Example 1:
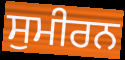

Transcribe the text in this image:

ਸੁਮੀਰਨ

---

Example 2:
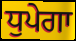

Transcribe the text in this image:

ਧੁਪੇਗਾ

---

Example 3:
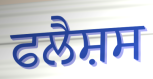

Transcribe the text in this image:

ਫਲੈਸ਼ਸ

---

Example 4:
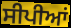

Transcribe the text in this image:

ਸੀਪੀਆਂ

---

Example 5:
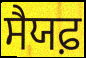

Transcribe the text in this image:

ਸੈਯਫ਼